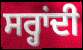
ਸਰ੍ਹਾਂਦੀ